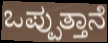
ಒಪ್ಪುತ್ತಾನೆ